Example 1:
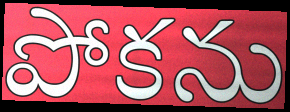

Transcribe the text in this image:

పోకను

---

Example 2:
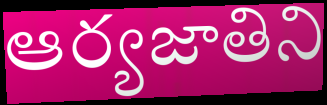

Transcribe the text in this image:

ఆర్యజాతిని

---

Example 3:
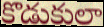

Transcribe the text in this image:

కొడుకులా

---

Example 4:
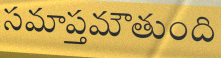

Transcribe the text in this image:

సమాప్తమౌతుంది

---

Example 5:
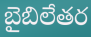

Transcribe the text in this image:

బైబిలేతర